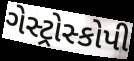
ગેસ્ટ્રોસ્કોપી